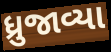
ધ્રુજાવ્યા